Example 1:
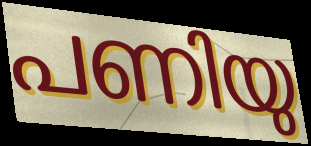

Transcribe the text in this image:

പണിയു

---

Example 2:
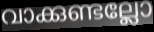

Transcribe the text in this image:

വാക്കുണ്ടല്ലോ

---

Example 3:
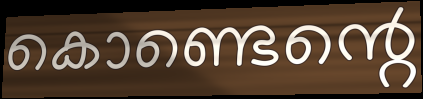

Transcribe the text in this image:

കൊണ്ടെന്റെ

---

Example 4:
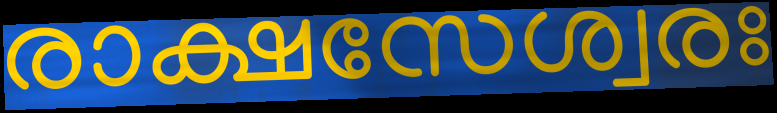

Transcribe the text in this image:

രാക്ഷസേശ്വരഃ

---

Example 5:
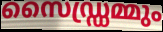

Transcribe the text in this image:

സൈഡ്ഡ്രമ്മും